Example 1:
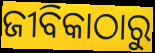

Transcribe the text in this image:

ଜୀବିକାଠାରୁ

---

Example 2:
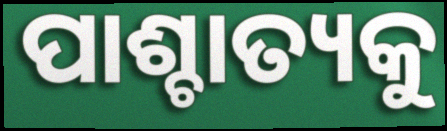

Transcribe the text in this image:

ପାଶ୍ଚାତ୍ୟକୁ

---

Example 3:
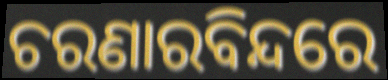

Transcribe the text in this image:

ଚରଣାରବିନ୍ଦରେ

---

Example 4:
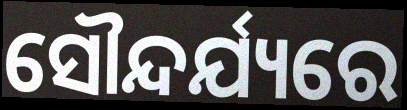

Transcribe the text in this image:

ସୌନ୍ଦର୍ଯ୍ୟରେ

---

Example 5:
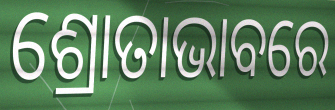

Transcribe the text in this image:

ଶ୍ରୋତାଭାବରେ